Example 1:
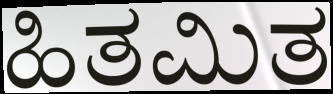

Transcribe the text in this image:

ಹಿತಮಿತ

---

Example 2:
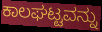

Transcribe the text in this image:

ಕಾಲಘಟ್ಟವನ್ನು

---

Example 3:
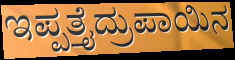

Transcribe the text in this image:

ಇಪ್ಪತ್ತೈದ್ರುಪಾಯಿನ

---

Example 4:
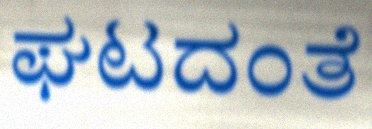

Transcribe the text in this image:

ಘಟದಂತೆ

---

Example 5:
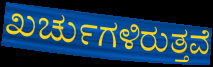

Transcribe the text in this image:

ಖರ್ಚುಗಳಿರುತ್ತವೆ